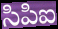
సిపిఐ